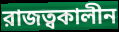
রাজত্বকালীন